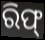
ରିଫ୍